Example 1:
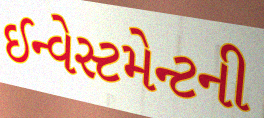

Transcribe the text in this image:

ઈન્વેસ્ટમેન્ટની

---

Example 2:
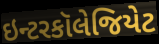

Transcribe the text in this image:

ઇન્ટરકૉલેજિયેટ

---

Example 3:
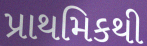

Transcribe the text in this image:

પ્રાથમિકથી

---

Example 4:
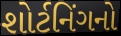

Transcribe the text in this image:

શોર્ટનિંગનો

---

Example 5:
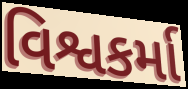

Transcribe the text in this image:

વિશ્વકર્મા